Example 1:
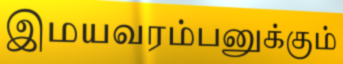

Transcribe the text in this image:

இமயவரம்பனுக்கும்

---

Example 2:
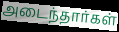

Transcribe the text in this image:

அடைந்தார்கள்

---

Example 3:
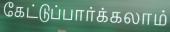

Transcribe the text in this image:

கேட்டுப்பார்க்கலாம்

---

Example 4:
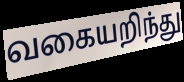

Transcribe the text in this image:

வகையறிந்து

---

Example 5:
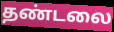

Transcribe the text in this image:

தண்டலை